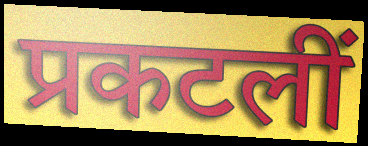
प्रकटलीं